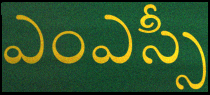
ఎంఎస్సీ